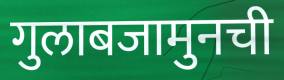
गुलाबजामुनची